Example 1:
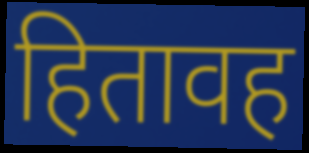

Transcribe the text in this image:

हितावह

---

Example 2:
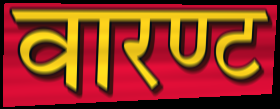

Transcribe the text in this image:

वारण्ट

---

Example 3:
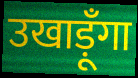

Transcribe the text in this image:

उखाड़ूँगा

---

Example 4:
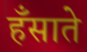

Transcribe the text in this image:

हँसाते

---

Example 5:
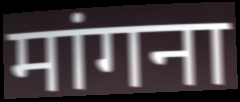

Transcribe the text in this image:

मांगना